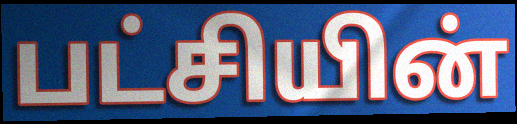
பட்சியின்